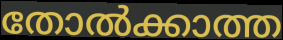
തോൽക്കാത്ത